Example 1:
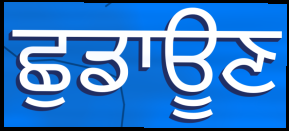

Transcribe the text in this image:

ਛੁਡਾਊਣ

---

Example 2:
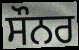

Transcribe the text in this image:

ਸੌਨਰ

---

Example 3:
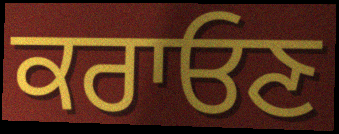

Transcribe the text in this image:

ਕਰਾਓਣ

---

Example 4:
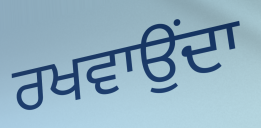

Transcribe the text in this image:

ਰਖਵਾਉਂਦਾ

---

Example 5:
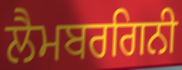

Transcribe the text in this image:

ਲੈਮਬਰਗਿਨੀ